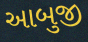
આબુજી